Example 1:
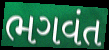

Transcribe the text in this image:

ભગવંત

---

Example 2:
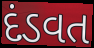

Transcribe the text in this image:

દંડવત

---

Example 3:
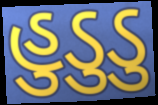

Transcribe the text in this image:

હુડુડુ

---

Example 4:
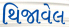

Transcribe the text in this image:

થિજાવેલ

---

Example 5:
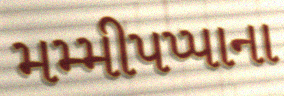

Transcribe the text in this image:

મમ્મીપપ્પાના